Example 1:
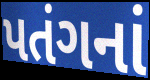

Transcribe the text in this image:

પતંગનાં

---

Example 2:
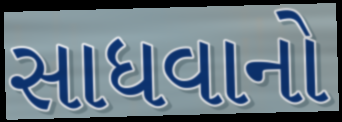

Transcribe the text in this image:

સાધવાનો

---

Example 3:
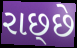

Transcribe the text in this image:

રાછ્છે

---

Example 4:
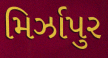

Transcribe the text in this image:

મિર્ઝાપુર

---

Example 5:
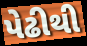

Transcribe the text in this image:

પેઢીથી